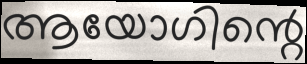
ആയോഗിന്റെ